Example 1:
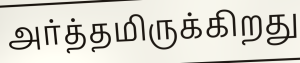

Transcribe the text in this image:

அர்த்தமிருக்கிறது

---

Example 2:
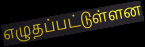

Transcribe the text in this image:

எழுதப்பட்டுள்ளன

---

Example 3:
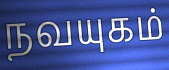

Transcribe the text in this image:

நவயுகம்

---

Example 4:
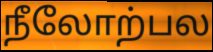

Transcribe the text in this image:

நீலோற்பல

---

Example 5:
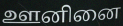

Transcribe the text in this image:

ஊனினை